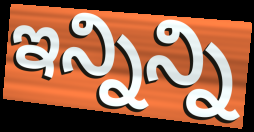
ఇన్నిన్ని